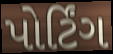
પોર્ટિંગ